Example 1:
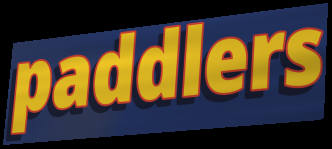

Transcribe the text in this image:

paddlers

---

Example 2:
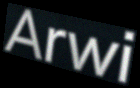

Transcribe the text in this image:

Arwi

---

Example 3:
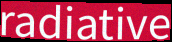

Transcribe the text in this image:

radiative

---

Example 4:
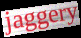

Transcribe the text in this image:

jaggery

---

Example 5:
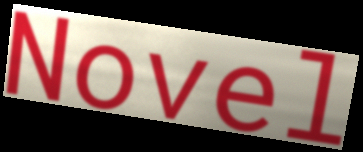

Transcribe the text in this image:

Novel